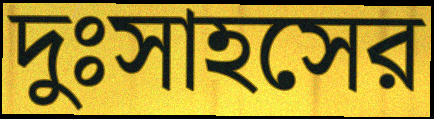
দুঃসাহসের